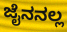
ಜೈನನಲ್ಲ